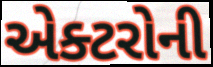
એક્ટરોની